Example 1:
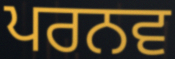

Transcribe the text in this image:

ਪਰਨਵ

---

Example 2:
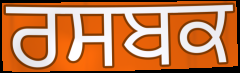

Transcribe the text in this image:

ਰਸਬਕ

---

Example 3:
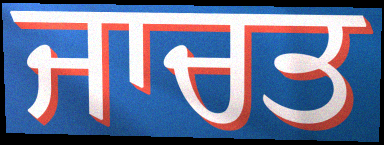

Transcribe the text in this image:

ਜਾਚਤ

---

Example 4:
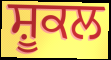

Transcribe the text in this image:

ਸ਼ੂਕਲ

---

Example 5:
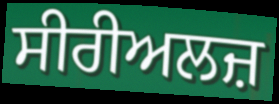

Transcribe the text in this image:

ਸੀਰੀਅਲਜ਼